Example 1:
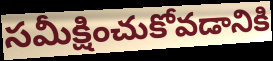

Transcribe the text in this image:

సమీక్షించుకోవడానికి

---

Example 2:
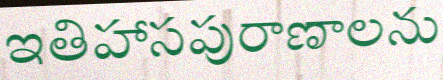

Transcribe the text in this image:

ఇతిహాసపురాణాలను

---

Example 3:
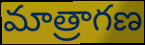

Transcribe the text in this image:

మాత్రాగణ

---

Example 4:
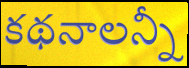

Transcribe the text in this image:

కథనాలన్నీ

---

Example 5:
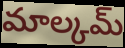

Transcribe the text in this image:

మాల్కమ్